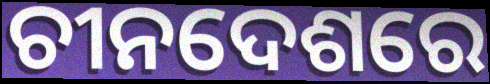
ଚୀନଦେଶରେ